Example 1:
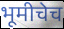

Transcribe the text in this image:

भूमीचेच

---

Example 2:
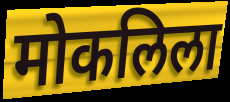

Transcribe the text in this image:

मोकलिला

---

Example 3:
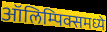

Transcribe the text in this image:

ऑलिम्पिक्समध्ये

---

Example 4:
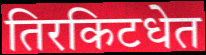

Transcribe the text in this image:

तिरकिटधेत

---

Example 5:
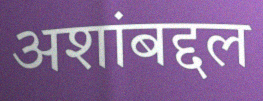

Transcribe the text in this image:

अशांबद्दल